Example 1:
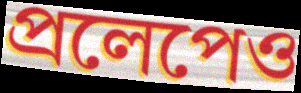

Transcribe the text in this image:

প্রলেপেও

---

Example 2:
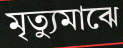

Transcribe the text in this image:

মৃত্যুমাঝে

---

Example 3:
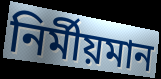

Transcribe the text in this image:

নির্মীয়মান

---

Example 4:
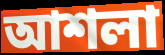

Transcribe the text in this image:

আশলা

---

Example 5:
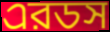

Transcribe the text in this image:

এরডস